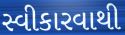
સ્વીકારવાથી